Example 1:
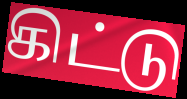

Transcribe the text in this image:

கிட்டு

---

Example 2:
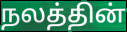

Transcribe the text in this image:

நலத்தின்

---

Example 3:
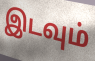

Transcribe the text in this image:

இடவும்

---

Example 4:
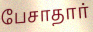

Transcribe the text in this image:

பேசாதார்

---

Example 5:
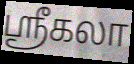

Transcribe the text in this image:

ஶ்ரீகலா